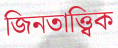
জিনতাত্ত্বিক